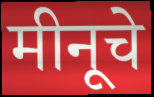
मीनूचे